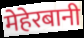
मेहेरबानी